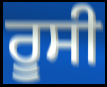
ਰੂਸੀ